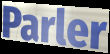
Parler